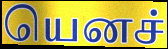
யெனச்